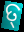
ତ୍